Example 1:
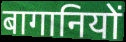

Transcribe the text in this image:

बागानियों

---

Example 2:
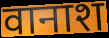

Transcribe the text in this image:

वानाश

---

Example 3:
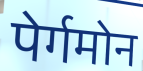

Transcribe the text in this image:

पेर्गमोन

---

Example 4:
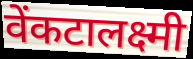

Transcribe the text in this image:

वेंकटालक्ष्मी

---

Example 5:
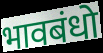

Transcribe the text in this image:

भावबंधो